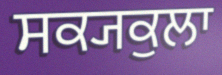
ਸਕ੍ਯਕੁਲਾ